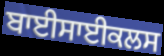
ਬਾਈਸਾਈਕਲਸ